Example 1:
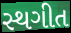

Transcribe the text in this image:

સ્થગીત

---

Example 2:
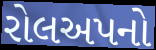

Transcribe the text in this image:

રોલઅપનો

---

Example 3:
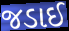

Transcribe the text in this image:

જડાઈ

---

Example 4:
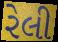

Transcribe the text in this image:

રેલી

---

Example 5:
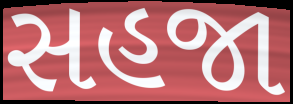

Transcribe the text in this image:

સહજા